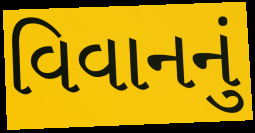
વિવાનનું